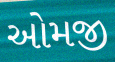
ઓમજી